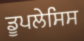
ਡੂਪਲੇਸਿਸ